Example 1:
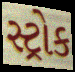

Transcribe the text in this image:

સ્ટ્રોક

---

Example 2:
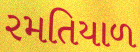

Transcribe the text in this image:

રમતિયાળ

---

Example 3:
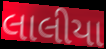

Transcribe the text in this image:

લાલીયા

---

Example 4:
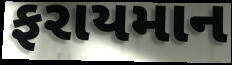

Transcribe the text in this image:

ફરાયમાન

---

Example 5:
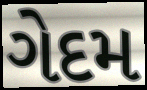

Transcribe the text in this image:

ગેદમ